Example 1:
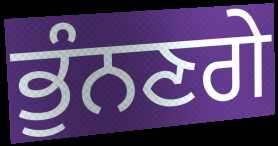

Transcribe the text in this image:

ਭੁੰਨਣਗੇ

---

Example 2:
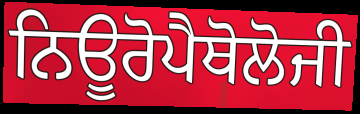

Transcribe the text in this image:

ਨਿਊਰੋਪੈਥੋਲੋਜੀ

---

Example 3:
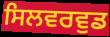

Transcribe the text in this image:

ਸਿਲਵਰਵੁਡ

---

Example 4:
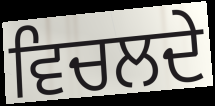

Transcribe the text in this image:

ਵਿਚਲਦੇ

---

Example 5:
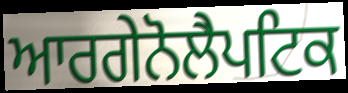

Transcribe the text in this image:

ਆਰਗੇਨੋਲੈਪਟਿਕ